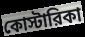
কোস্টারিকা